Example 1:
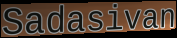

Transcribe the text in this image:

Sadasivan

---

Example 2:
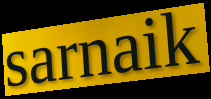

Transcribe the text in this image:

sarnaik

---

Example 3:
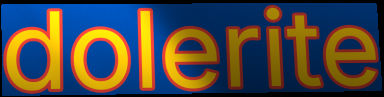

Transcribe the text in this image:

dolerite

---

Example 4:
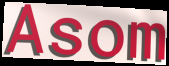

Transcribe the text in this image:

Asom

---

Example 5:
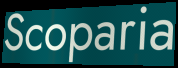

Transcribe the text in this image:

Scoparia